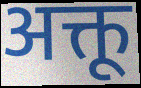
अक्तू